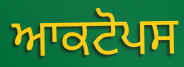
ਆਕਟੋਪਸ